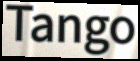
Tango